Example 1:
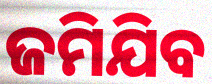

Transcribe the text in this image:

ଜମିଯିବ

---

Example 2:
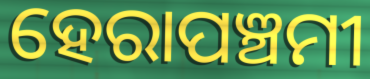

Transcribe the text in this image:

ହେରାପଞ୍ଚମୀ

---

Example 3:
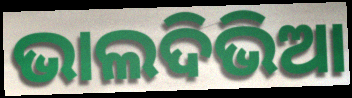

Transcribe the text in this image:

ଭାଲଦିଭିଆ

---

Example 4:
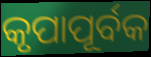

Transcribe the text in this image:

କୃପାପୂର୍ବକ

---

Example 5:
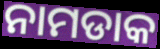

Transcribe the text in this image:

ନାମଡାକ